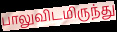
பாலுவிடமிருந்து